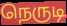
நெருடி